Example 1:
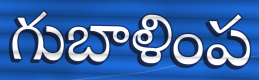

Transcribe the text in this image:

గుబాళింప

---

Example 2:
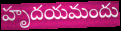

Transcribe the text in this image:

హృదయమందు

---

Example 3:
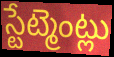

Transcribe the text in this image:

స్టేట్మెంట్లు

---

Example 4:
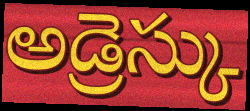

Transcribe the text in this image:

అడ్రెస్కు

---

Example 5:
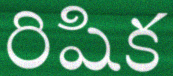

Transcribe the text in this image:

రిషిక